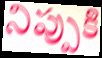
నిప్పుకి